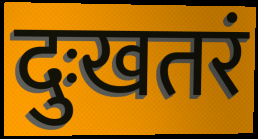
दुःखतरं